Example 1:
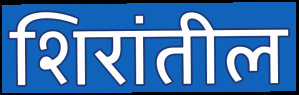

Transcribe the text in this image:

शिरांतील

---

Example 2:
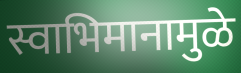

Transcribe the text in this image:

स्वाभिमानामुळे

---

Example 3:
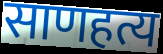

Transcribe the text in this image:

साणहत्य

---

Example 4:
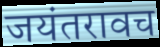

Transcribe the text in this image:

जयंतरावच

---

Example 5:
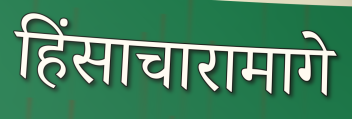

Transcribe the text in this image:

हिंसाचारामागे